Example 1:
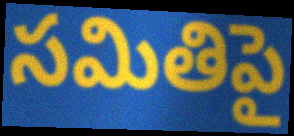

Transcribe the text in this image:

సమితిపై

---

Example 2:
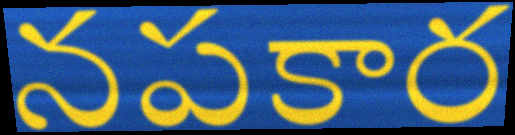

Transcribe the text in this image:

నపకార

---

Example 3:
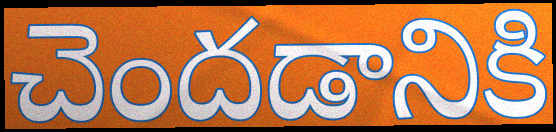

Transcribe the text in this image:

చెందడానికి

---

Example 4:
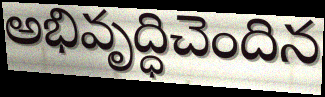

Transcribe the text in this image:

అభివృద్ధిచెందిన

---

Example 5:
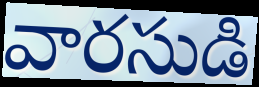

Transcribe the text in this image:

వారసుడి